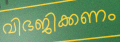
വിഭജിക്കണം